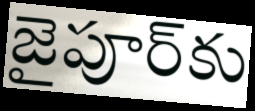
జైపూర్‌కు